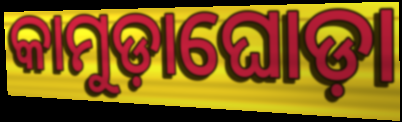
କାମୁଡ଼ାଘୋଡ଼ା